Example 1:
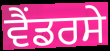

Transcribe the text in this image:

ਵੈਂਡਰਸੇ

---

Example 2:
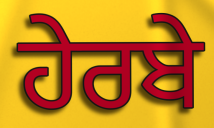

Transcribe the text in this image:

ਹੇਰਬੇ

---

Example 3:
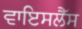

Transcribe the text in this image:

ਵਾਇਸਲੈੱਸ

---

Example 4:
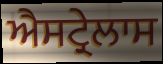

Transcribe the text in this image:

ਐਸਟ੍ਰੇਲਾਸ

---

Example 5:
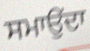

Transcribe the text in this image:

ਸਮਾਉਂਦਾ